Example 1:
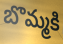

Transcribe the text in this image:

బొమ్మకి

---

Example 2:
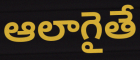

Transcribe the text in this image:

ఆలాగైతే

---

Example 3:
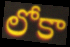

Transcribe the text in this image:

లోకా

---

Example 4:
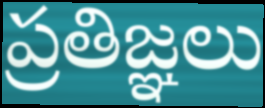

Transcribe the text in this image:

ప్రతిజ్ఞలు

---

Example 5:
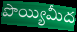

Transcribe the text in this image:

పొయ్యిమీద